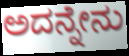
ಅದನ್ನೇನು